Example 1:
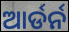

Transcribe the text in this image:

ଆର୍ଡର୍ନ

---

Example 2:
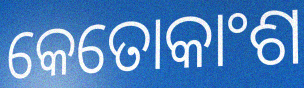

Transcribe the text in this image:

କେତୋକାଂଶ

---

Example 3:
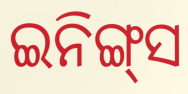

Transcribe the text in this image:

ଇନିଙ୍ଗ୍‌ସ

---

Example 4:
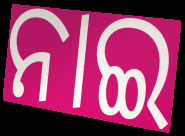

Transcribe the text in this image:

ନାଇ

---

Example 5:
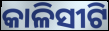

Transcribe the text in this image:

କାଳିସୀଟି